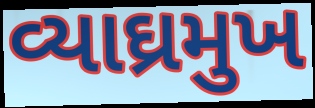
વ્યાઘ્રમુખ